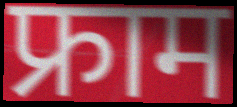
फ्राम